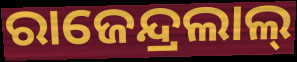
ରାଜେନ୍ଦ୍ରଲାଲ୍